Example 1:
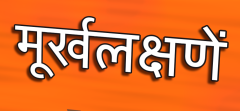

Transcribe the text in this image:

मूर्खलक्षणें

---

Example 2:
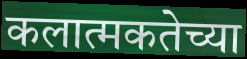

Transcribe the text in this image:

कलात्मकतेच्या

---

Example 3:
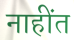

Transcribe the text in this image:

नाहींत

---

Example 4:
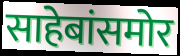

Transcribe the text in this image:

साहेबांसमोर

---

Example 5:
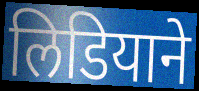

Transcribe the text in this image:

लिडियाने